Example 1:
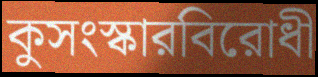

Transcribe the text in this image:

কুসংস্কারবিরোধী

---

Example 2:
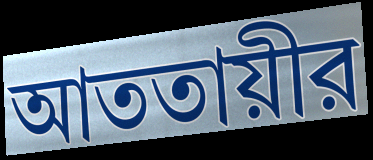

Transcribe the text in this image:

আততায়ীর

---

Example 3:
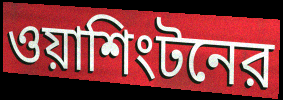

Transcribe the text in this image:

ওয়াশিংটনের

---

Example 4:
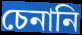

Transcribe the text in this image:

চেনানি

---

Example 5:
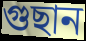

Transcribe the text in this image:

গুছান